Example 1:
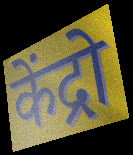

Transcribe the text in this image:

केंद्रो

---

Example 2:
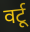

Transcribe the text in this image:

वर्टू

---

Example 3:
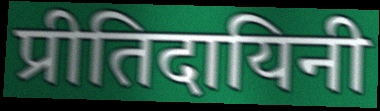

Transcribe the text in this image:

प्रीतिदायिनी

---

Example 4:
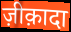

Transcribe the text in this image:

ज़ीक़ादा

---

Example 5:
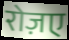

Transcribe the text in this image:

रोज़ए